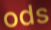
ods